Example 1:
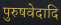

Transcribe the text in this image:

पुरुषवेदादि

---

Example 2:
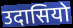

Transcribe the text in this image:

उदासियो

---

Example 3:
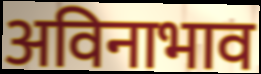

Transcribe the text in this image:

अविनाभाव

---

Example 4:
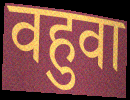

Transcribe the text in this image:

वहुवा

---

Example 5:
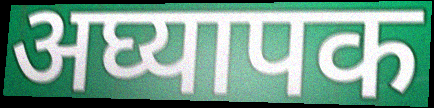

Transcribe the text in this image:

अघ्यापक